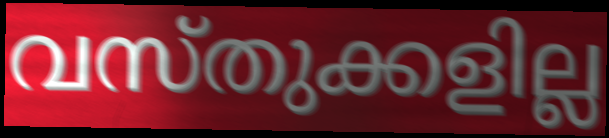
വസ്തുക്കളില്ല